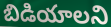
బిడియాలని